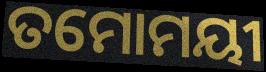
ତମୋମୟୀ